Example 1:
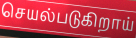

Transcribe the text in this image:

செயல்படுகிறாய்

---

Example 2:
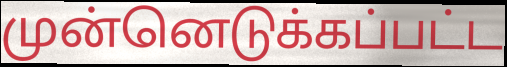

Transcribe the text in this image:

முன்னெடுக்கப்பட்ட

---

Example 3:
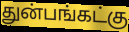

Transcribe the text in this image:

துன்பங்கட்கு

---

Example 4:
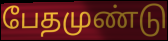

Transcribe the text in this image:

பேதமுண்டு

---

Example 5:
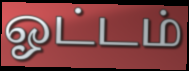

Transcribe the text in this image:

ஓட்டம்